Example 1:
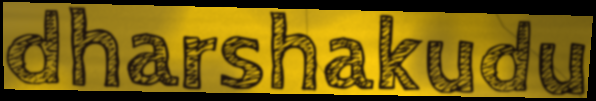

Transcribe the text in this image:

dharshakudu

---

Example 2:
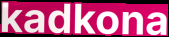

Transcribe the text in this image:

kadkona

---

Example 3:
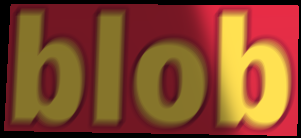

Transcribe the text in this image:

blob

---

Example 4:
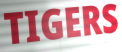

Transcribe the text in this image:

TIGERS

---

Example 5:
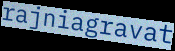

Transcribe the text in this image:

rajniagravat